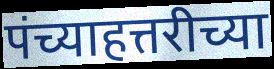
पंच्याहत्तरीच्या